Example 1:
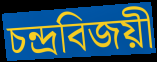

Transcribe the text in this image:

চন্দ্রবিজয়ী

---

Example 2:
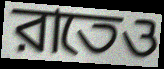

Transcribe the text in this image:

রাতেও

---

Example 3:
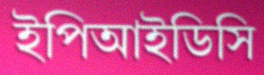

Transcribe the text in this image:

ইপিআইডিসি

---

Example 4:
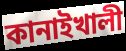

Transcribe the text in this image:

কানাইখালী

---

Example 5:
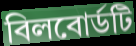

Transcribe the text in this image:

বিলবোর্ডটি